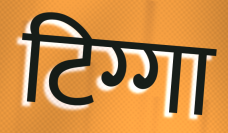
टिग्गा